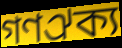
গণঐক্য